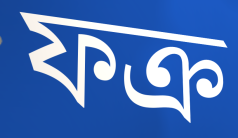
ফক্র